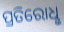
ପ୍ରତିରୋଧୢ